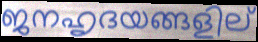
ജനഹൃദയങ്ങളില്